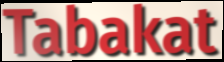
Tabakat